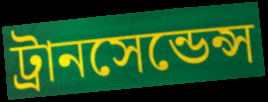
ট্রানসেন্ডেন্স